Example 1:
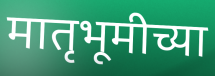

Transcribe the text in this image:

मातृभूमीच्या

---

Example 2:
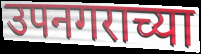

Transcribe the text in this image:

उपनगराच्या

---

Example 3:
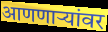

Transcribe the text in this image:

आणणाऱ्यांवर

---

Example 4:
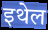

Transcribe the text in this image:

इथेल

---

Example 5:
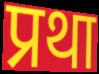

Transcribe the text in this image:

प्रथा